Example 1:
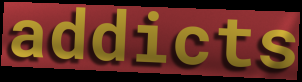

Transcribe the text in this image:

addicts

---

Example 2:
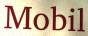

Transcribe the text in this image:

Mobil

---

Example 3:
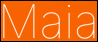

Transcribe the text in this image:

Maia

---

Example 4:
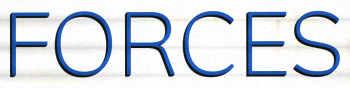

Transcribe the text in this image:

FORCES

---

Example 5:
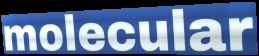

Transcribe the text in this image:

molecular